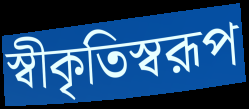
স্বীকৃতিস্বরূপ